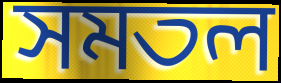
সমতল